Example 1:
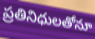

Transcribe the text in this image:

ప్రతినిధులతోనూ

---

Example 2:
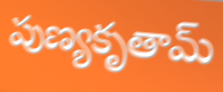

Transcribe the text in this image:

పుణ్యకృతామ్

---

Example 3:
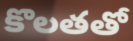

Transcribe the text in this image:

కొలతతో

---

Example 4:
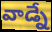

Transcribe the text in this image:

వాడ్నే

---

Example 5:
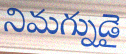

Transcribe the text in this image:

నిమగ్నుడై